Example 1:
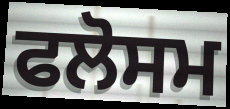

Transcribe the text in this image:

ਫਲੋਸਮ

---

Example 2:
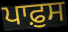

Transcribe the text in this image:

ਪਾਫ਼ੁਸ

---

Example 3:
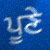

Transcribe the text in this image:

ਪੂਣੇ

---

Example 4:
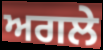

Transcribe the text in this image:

ਅਗਲੇ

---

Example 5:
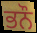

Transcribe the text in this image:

ਭਨੌ